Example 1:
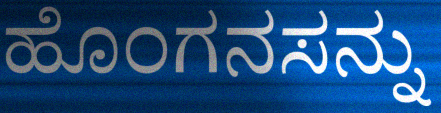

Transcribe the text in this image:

ಹೊಂಗನಸನ್ನು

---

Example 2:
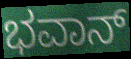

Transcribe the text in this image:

ಭವಾನ್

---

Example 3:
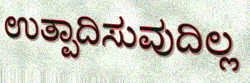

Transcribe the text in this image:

ಉತ್ಪಾದಿಸುವುದಿಲ್ಲ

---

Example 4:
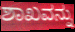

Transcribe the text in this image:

ಶಾಖವನ್ನು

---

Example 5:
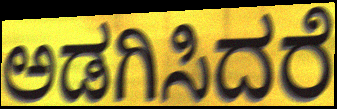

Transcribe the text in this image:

ಅಡಗಿಸಿದರೆ